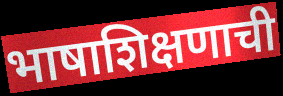
भाषाशिक्षणाची